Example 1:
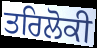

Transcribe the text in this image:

ਤਰਿਲੋਕੀ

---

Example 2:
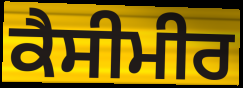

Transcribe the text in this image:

ਕੈਸੀਮੀਰ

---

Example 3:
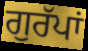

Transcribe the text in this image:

ਗੁਰੱਪਾਂ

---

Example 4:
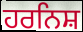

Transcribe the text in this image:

ਹਰਨਿਸ਼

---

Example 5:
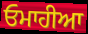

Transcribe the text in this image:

ਓਮਾਹੀਆ